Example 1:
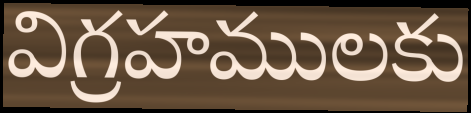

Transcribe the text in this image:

విగ్రహములకు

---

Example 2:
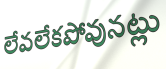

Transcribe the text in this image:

లేవలేకపోవునట్లు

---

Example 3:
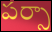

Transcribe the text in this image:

పర్సా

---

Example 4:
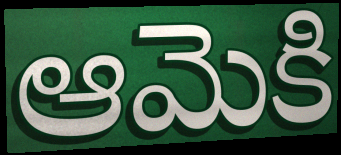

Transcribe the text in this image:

ఆమెకి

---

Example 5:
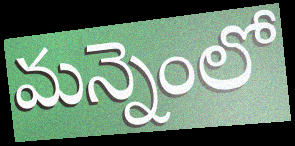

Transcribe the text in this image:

మన్నెంలో